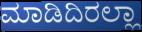
ಮಾಡಿದಿರಲ್ಲಾ